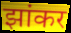
झांकर